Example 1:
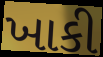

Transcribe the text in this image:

ખાકી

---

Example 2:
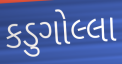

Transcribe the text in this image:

કડુગોલ્લા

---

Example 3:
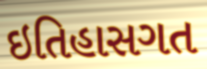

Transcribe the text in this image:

ઇતિહાસગત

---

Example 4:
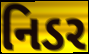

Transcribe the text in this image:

નિડર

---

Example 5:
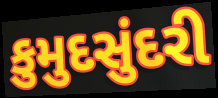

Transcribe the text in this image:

કુમુદસુંદરી